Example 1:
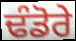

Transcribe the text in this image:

ਢੰਡੋਰੇ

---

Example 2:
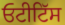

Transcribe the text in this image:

ਓਟੀਟਿੱਸ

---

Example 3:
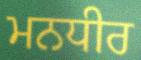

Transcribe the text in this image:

ਮਨਧੀਰ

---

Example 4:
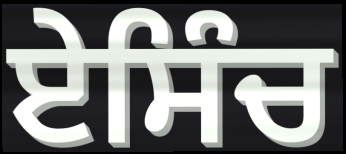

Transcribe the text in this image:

ਏਸਿੰਚ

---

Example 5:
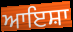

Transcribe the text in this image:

ਆਇਸ਼ਾ